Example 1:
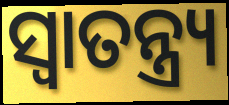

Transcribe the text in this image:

ସ୍ଵାତନ୍ତ୍ର୍ୟ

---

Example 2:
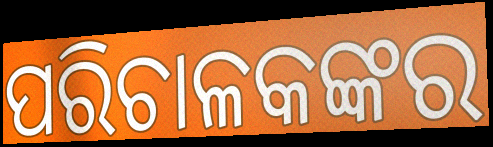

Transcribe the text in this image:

ପରିଚାଳକଙ୍କର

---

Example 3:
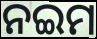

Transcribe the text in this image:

ନଇମ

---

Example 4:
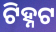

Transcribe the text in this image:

ଟିହ୍ନଟ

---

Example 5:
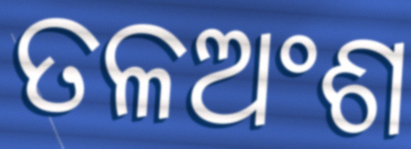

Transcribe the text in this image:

ତଳଅଂଶ